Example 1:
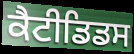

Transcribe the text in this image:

ਕੈਟੀਡਿਡਸ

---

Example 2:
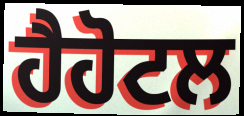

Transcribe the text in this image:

ਹੈਹੋਟਲ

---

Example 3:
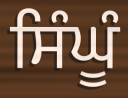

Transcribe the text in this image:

ਸਿੰਘੂੰ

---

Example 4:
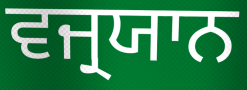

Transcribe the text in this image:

ਵਜ੍ਰਯਾਨ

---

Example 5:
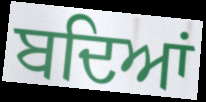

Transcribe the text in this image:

ਬਦਿਆਂ